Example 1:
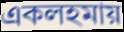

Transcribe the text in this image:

একলহমায়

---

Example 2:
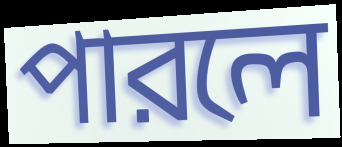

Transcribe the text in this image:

পারলে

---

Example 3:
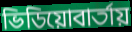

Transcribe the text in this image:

ভিডিয়োবার্তায়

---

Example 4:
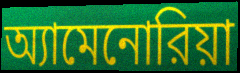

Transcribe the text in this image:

অ্যামেনোরিয়া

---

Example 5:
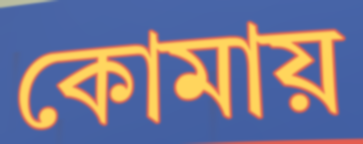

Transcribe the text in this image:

কোমায়